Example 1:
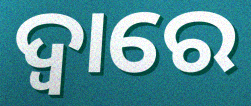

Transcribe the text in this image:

ଦ୍ବାରେ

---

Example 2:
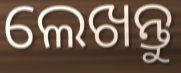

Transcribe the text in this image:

ଲେଖନ୍ତୁ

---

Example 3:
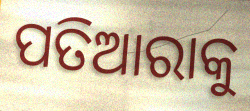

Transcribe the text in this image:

ପତିଆରାକୁ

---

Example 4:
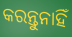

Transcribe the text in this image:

କରନ୍ତୁନାହିଁ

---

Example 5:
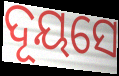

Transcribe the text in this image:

ଦୂୟସେ